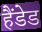
हैंडेड